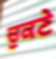
ਚੁਕਣੇ